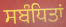
ਸਬੰਧਿਤਾਂ